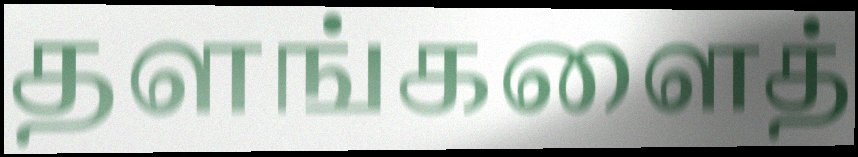
தளங்களைத்